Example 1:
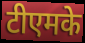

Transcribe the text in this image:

टीएमके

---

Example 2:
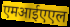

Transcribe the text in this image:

एमआईएएल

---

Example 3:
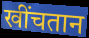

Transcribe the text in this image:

खींचतान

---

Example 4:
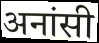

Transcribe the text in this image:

अनांसी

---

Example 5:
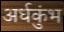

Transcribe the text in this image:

अर्धकुंभ